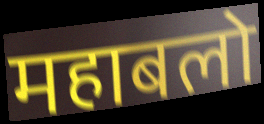
महाबलो